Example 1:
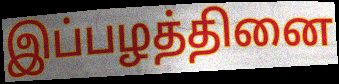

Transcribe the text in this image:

இப்பழத்தினை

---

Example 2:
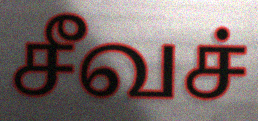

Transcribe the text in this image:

சீவச்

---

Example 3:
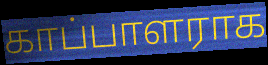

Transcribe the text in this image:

காப்பாளராக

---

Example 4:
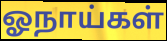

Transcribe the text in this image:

ஓநாய்கள்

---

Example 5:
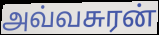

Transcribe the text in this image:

அவ்வசுரன்